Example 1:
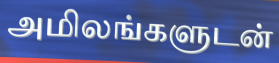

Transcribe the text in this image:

அமிலங்களுடன்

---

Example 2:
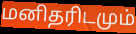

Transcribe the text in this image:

மனிதரிடமும்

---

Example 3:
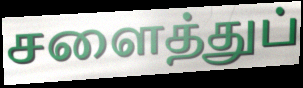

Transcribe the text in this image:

சளைத்துப்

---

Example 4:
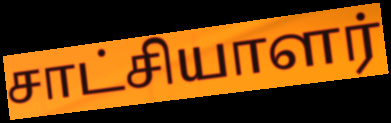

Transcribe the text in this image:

சாட்சியாளர்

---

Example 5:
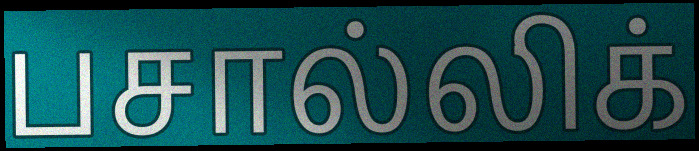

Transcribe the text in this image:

பசால்லிக்